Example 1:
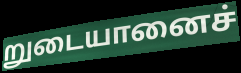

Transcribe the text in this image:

றுடையானைச்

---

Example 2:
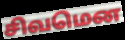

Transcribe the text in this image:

சிவமென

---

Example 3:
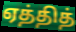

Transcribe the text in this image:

ஏத்தித்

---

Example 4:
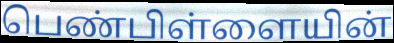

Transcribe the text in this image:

பெண்பிள்ளையின்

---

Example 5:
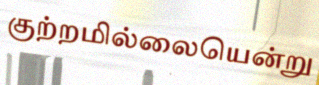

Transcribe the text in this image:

குற்றமில்லையென்று